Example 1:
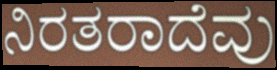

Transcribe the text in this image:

ನಿರತರಾದೆವು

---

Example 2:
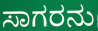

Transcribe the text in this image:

ಸಾಗರನು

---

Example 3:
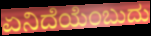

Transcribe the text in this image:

ಏನಿದೆಯೆಂಬುದು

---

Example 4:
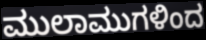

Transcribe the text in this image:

ಮುಲಾಮುಗಳಿಂದ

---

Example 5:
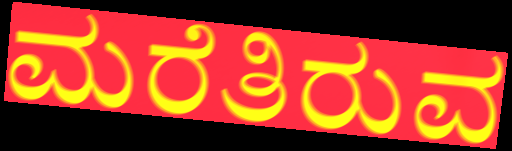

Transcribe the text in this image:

ಮರೆತಿರುವ